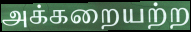
அக்கறையற்ற